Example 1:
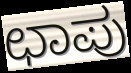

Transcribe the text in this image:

ಛಾಪು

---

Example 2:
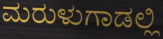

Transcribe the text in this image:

ಮರುಳುಗಾಡಲ್ಲಿ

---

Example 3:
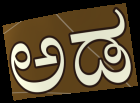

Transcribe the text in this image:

ಅಡ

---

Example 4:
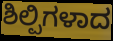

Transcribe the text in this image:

ಶಿಲ್ಪಿಗಳಾದ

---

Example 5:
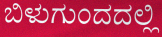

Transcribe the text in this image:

ಬಿಳುಗುಂದದಲ್ಲಿ